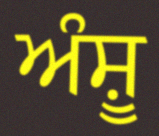
ਅੰਸ਼ੂ